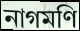
নাগমণি